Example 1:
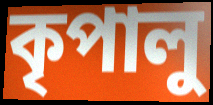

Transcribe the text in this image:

কৃপালু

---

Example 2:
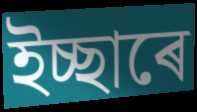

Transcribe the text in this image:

ইচ্ছাৰে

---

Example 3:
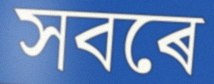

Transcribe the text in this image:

সবৰে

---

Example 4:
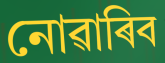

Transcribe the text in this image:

নোৱাৰিব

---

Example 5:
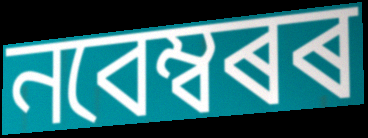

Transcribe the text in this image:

নবেম্বৰৰ